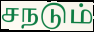
சநடும்